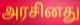
அரசினது